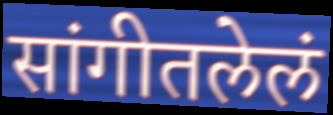
सांगीतलेलं